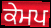
ਕੇਮਪ